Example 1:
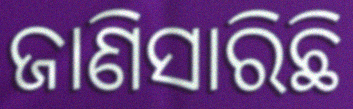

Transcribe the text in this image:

ଜାଣିସାରିଛି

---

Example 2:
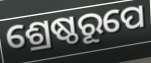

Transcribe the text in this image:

ଶ୍ରେଷ୍ଠରୂପେ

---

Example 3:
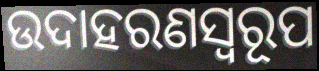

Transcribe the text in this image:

ଉଦାହରଣସ୍ୱରୂପ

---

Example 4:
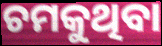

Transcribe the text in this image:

ଚମକୁଥିବା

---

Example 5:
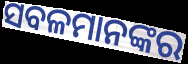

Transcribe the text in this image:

ସବଳମାନଙ୍କର